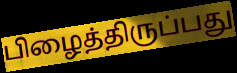
பிழைத்திருப்பது